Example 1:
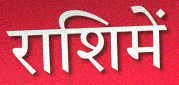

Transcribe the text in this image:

राशिमें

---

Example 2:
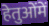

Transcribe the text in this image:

हेतुओंमें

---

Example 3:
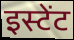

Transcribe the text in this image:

इस्टेंट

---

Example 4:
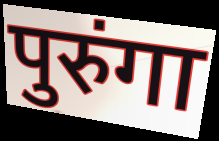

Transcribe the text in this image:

पुरुंगा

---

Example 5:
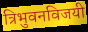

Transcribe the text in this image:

त्रिभुवनविजयी